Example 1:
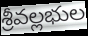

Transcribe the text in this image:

శ్రీవల్లభుల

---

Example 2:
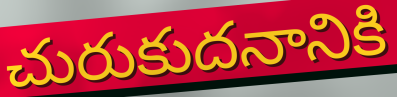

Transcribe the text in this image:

చురుకుదనానికి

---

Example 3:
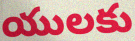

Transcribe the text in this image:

యులకు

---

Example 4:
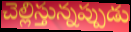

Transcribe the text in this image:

చెల్లిస్తున్నప్పుడు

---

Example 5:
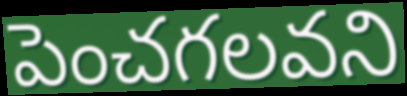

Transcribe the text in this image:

పెంచగలవని